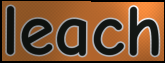
leach